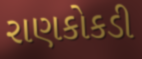
રાણકોકડી